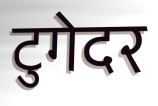
टुगेदर